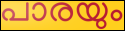
പാരയും